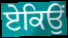
ਏਕਿਉਂ